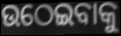
ଉଠେଇବାକୁ